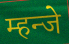
म्हन्जे